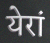
येरां